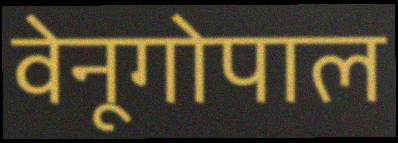
वेनूगोपाल